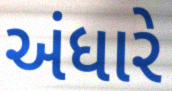
અંધારે